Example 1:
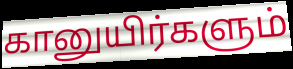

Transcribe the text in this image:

கானுயிர்களும்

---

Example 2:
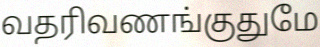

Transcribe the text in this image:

வதரிவணங்குதுமே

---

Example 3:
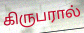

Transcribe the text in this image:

கிருபரால்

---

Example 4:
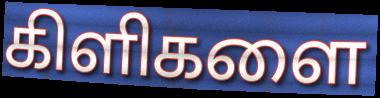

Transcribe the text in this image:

கிளிகளை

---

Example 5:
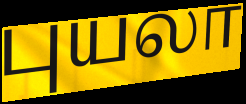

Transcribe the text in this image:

புயலா